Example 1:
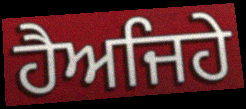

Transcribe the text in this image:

ਹੈਅਜਿਹੇ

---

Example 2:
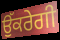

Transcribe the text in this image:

ਉੱਕਰੇਗੀ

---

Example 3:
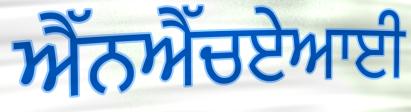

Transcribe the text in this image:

ਐੱਨਐੱਚਏਆਈ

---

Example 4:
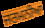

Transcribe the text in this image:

ਜਰਮਨੀਆ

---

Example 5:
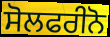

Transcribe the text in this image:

ਸੋਲਫਰੀਨੋ